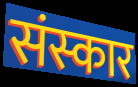
संस्‍कार